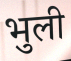
भुली